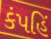
કંપહિં